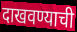
दाखवण्याची